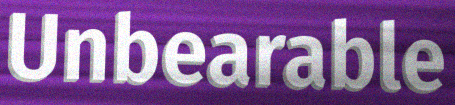
Unbearable